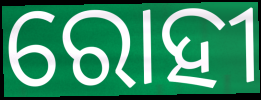
ରୋହୀ